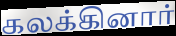
கலக்கினார்